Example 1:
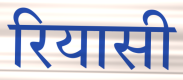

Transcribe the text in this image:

रियासी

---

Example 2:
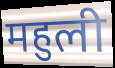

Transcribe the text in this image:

महुली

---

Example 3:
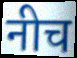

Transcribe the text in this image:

नीच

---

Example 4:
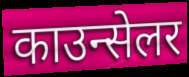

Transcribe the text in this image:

काउन्सेलर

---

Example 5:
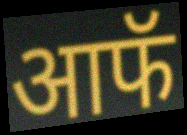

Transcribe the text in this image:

आफॅ